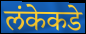
लंकेकडे